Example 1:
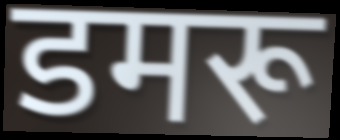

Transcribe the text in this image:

डमरू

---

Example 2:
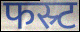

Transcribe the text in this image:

फस्र्ट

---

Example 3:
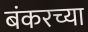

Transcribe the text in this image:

बंकरच्या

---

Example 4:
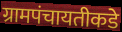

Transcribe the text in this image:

ग्रामपंचायतीकडे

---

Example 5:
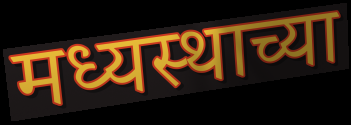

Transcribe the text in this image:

मध्यस्थाच्या